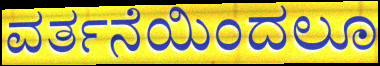
ವರ್ತನೆಯಿಂದಲೂ